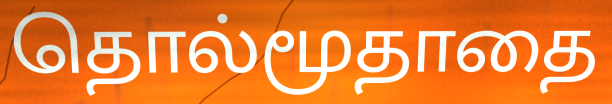
தொல்மூதாதை